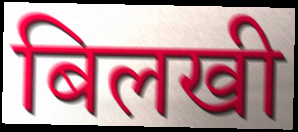
बिलखी